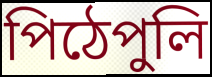
পিঠেপুলি